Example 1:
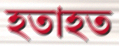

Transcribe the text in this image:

হতাহত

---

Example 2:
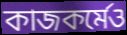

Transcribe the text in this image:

কাজকর্মেও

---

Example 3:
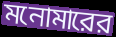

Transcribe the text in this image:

মনোমারের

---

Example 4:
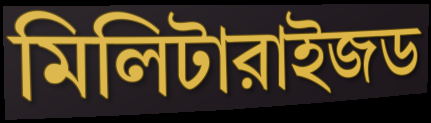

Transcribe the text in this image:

মিলিটারাইজড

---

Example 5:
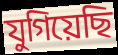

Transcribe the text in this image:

যুগিয়েছি